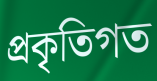
প্রকৃতিগত